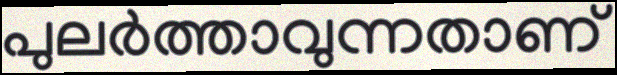
പുലർത്താവുന്നതാണ്